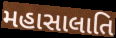
મહાસાલાતિ